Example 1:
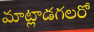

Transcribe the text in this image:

మాట్లాడగలరో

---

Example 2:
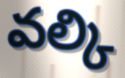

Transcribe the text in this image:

వల్కి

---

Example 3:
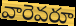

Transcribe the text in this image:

వారెవరూ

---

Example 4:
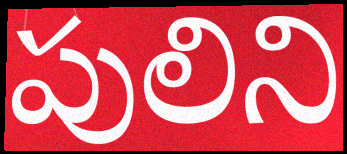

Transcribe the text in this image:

పులిని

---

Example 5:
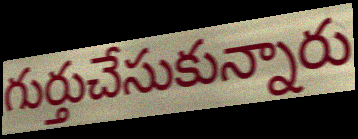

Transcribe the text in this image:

గుర్తుచేసుకున్నారు